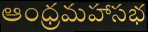
ఆంధ్రమహాసభ